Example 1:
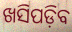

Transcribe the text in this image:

ଖସିପଡ଼ିବ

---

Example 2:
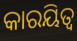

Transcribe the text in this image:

କାରୟିତ୍ୱ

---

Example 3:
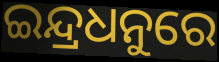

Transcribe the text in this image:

ଇନ୍ଦ୍ରଧନୁରେ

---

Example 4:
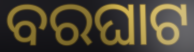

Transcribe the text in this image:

ବରଘାଟ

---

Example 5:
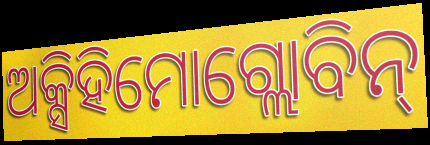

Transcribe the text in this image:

ଅକ୍ସିହିମୋଗ୍ଲୋବିନ୍